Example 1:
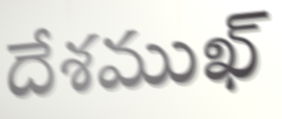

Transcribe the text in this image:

దేశముఖ్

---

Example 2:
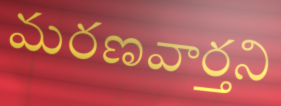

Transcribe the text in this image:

మరణవార్తని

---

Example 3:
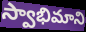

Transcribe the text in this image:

స్వాభిమాని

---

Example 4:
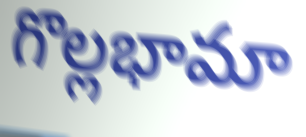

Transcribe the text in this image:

గొల్లభామా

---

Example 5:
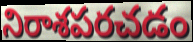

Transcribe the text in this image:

నిరాశపరచడం